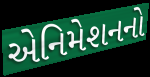
એનિમેશનનો